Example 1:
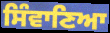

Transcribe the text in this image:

ਸਿੰਵਾਣਿਆ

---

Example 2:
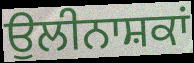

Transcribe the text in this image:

ਉਲੀਨਾਸ਼ਕਾਂ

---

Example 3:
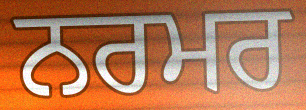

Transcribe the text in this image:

ਨਰਮਰ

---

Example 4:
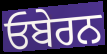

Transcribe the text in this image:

ਓਬੇਰਨ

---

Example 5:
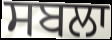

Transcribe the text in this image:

ਸਬਲਾ